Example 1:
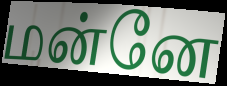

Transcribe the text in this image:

மன்னே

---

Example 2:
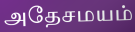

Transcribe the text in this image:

அதேசமயம்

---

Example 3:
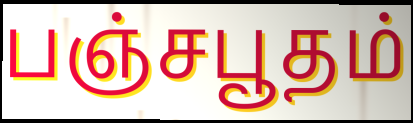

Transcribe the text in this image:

பஞ்சபூதம்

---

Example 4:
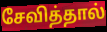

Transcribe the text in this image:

சேவித்தால்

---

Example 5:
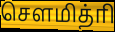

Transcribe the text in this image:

சௌமித்ரி